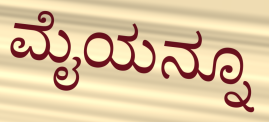
ಮೈಯನ್ನೂ